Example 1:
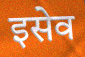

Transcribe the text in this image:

इसेव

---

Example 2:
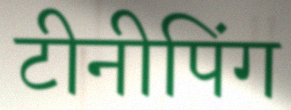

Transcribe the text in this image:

टीनीपिंग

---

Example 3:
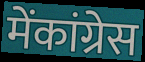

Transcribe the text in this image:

मेंकांग्रेस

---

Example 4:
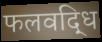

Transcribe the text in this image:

फलवद्धि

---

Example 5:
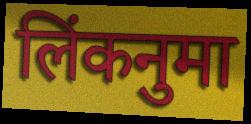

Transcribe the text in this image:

लिंकनुमा